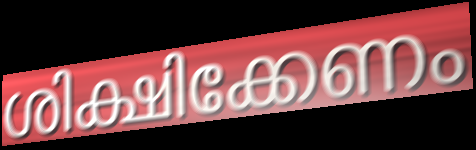
ശിക്ഷിക്കേണം